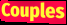
Couples